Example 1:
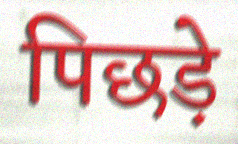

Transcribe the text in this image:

पिछड़े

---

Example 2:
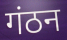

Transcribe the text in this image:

गंठन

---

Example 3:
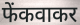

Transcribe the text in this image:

फेंकवाकर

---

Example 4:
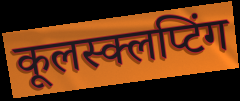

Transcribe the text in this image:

कूलस्क्लप्टिंग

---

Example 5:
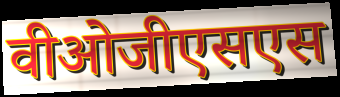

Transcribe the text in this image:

वीओजीएसएस